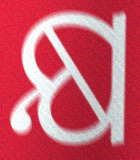
କ୍ଷ